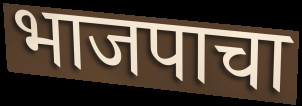
भाजपाचा